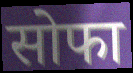
सोफा